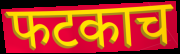
फटकाच